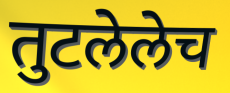
तुटलेलेच